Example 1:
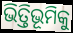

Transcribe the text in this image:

ଭିତ୍ତିଭୂମିକୁ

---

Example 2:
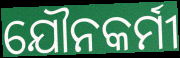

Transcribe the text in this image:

ଯୌନକର୍ମୀ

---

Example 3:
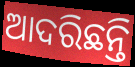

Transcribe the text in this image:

ଆଦରିଛନ୍ତି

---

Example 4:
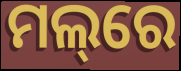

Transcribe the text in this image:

ମଲ୍‌ରେ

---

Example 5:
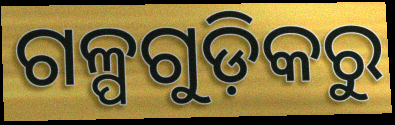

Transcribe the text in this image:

ଗଳ୍ପଗୁଡ଼ିକରୁ